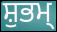
ਸ਼ੁਭਮ੍